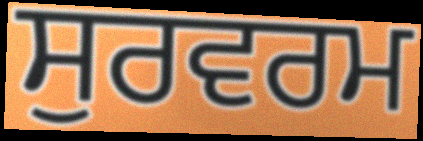
ਸੁਰਵਰਮ